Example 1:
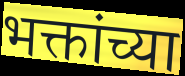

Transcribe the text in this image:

भक्तांच्या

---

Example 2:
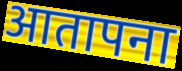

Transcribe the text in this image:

आतापना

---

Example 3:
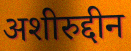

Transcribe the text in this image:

अशीरुद्दीन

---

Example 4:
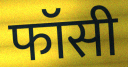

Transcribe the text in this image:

फॉसी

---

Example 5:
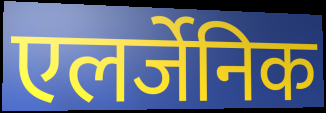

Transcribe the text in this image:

एलर्जेनिक